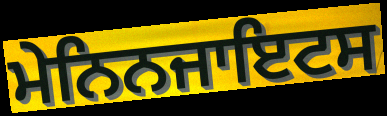
ਮੇਨਿਨਜਾਇਟਸ